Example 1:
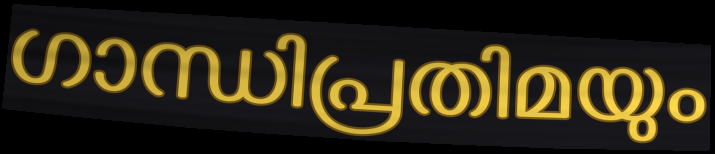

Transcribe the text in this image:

ഗാന്ധിപ്രതിമയും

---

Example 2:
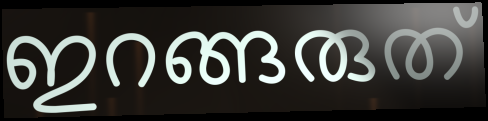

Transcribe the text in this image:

ഇറങ്ങരുത്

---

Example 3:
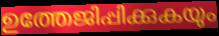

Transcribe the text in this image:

ഉത്തേജിപ്പിക്കുകയും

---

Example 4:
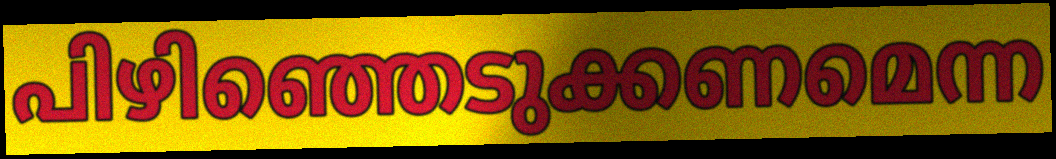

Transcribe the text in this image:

പിഴിഞ്ഞെടുക്കണമെന്ന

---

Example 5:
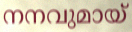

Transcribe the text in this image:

നനവുമായ്